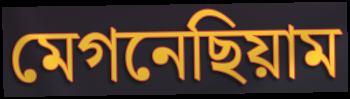
মেগনেছিয়াম